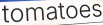
tomatoes